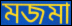
মজমা